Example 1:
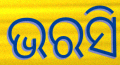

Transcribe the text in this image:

ଭରସି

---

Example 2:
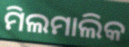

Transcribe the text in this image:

ମିଲମାଲିକ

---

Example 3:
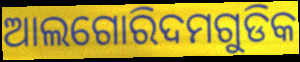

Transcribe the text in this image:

ଆଲଗୋରିଦମଗୁଡିକ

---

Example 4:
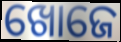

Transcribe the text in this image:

ଖୋଜେ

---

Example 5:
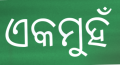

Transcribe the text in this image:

ଏକମୁହଁ